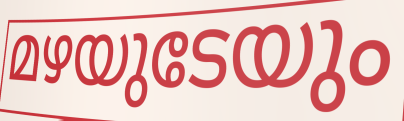
മഴയുടേയും